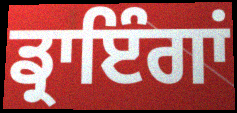
ਡ੍ਰਾਇੰਗਾਂ